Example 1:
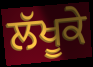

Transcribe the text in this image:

ਲੱਖੂਕੇ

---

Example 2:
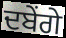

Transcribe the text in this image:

ਦਬੇਂਗੇ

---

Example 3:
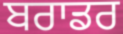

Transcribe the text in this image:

ਬਰਾਡਰ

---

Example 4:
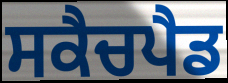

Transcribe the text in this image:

ਸਕੈਚਪੈਡ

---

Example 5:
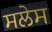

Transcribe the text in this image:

ਸਲੇਸ